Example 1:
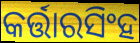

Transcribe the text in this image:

କର୍ତ୍ତାରସିଂହ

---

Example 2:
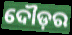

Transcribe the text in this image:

ଦୌଡ଼ର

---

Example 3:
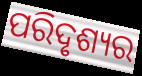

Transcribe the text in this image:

ପରିଦୃଶ୍ୟର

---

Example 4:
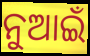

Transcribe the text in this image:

ନୁଆଇଁ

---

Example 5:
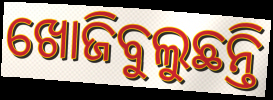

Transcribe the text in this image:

ଖୋଜିବୁଲୁଛନ୍ତି